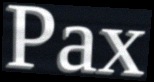
Pax